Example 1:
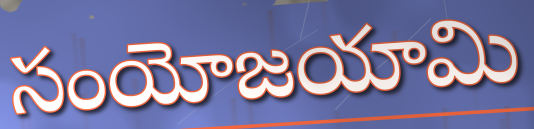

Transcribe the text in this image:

సంయోజయామి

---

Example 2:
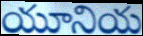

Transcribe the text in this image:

యూనియ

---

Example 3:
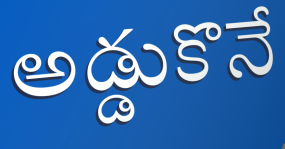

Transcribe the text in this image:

అడ్డుకొనే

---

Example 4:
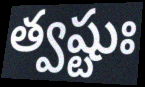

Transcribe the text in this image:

త్వష్టుః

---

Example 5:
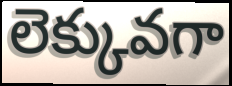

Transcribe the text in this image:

లెక్కువగా